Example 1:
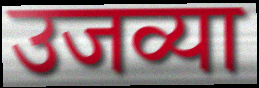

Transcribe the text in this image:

उजव्या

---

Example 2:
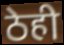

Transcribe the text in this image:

ठेही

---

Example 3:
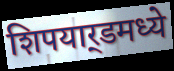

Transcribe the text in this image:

शिपयार्डमध्ये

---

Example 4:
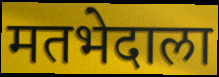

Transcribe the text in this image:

मतभेदाला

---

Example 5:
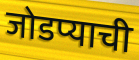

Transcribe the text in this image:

जोडप्याची